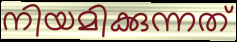
നിയമിക്കുന്നത്